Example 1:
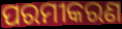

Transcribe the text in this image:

ପରମୀକରଣ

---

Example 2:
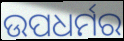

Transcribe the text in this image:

ଉପଧର୍ମର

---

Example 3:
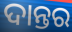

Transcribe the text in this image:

ଦାନ୍ତର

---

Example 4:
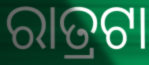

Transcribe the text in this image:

ରାତ୍ରଟା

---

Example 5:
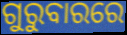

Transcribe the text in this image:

ଗୁରୁବାରରେ